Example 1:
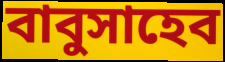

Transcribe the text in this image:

বাবুসাহেব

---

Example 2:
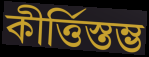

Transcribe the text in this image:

কীর্ত্তিস্তম্ভ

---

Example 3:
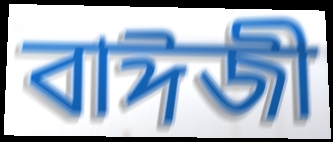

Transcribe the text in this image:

বাঈজী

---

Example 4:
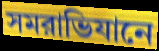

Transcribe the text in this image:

সমরাভিযানে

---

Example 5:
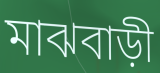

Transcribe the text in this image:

মাঝবাড়ী